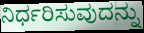
ನಿರ್ಧರಿಸುವುದನ್ನು